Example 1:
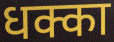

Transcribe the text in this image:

धक्का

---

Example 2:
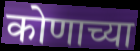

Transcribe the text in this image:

कोणाच्या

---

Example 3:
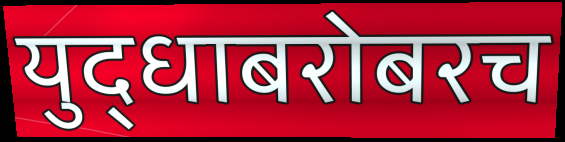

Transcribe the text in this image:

युद्धाबरोबरच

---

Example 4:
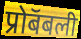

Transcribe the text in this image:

प्रोबॅबली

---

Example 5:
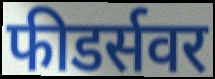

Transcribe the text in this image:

फीडर्सवर